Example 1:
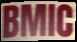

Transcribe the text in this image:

BMIC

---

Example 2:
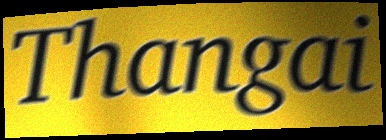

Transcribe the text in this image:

Thangai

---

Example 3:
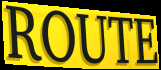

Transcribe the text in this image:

ROUTE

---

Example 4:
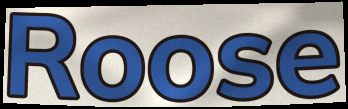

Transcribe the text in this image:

Roose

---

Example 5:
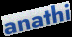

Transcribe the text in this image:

anathi